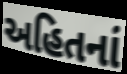
અહિતનાં